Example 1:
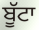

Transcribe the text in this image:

ਬੂੱਟਾ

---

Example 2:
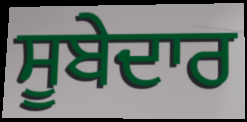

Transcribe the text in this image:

ਸੂਬੇਦਾਰ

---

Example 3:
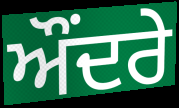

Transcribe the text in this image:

ਔਂਦਰੇ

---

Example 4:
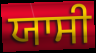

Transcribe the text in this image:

ਯਾਸੀ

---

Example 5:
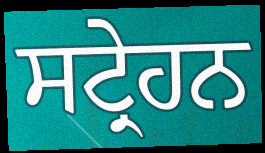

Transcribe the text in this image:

ਸਟ੍ਰੇਹਨ